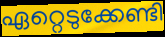
ഏറ്റെടുക്കേണ്ടി